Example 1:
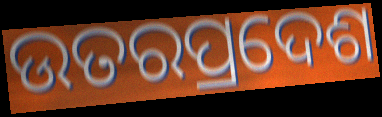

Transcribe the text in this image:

ଉତରପ୍ରଦେଶ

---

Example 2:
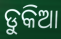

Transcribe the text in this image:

ଡୁକିଆ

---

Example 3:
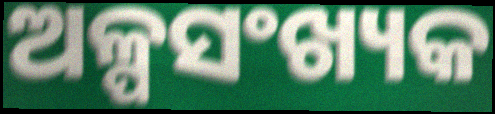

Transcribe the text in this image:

ଅଳ୍ପସଂଖ୍ୟକ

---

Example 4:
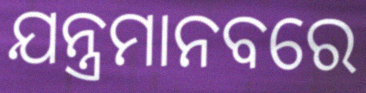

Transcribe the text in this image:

ଯନ୍ତ୍ରମାନବରେ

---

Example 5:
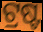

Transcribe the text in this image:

ଟ୍ରଷ୍ଟ